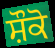
ਸ਼ੌਕੋ